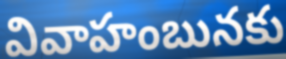
వివాహంబునకు